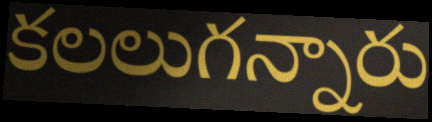
కలలుగన్నారు